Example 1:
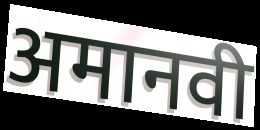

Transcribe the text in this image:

अमानवी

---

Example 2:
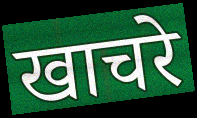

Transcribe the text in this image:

खाचरे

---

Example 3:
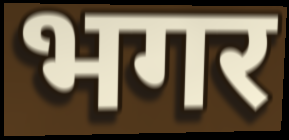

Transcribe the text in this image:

भगर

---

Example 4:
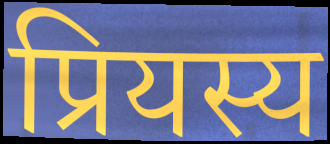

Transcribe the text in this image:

प्रियस्य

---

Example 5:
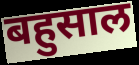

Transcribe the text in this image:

बहुसाल